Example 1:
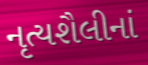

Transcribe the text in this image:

નૃત્યશૈલીનાં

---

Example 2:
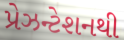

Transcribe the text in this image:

પ્રેઝન્ટેશનથી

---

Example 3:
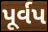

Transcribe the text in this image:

પૂર્વપ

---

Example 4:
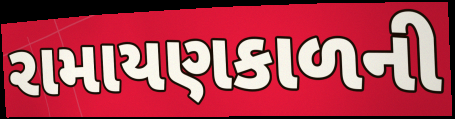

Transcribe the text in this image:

રામાયણકાળની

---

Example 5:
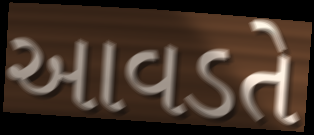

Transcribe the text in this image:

આવડતે